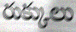
రుక్కులు